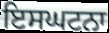
ਇਸਘਟਨਾ